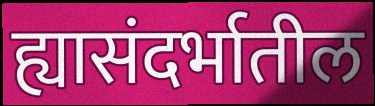
ह्यासंदर्भातील